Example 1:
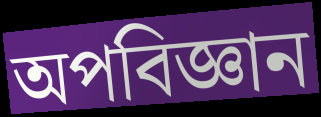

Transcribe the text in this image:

অপবিজ্ঞান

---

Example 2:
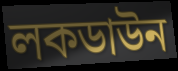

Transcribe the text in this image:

লকডাউন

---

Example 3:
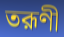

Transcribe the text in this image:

তরূণী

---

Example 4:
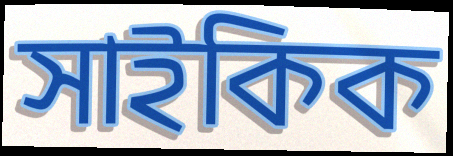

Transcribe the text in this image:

সাইকিক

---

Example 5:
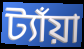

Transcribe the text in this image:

ট্যাঁয়া